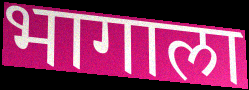
भागाला